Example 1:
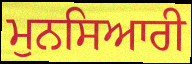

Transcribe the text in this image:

ਮੁਨਸਿਆਰੀ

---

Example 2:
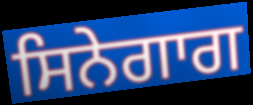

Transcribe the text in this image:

ਸਿਨੇਗਾਗ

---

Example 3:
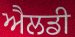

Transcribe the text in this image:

ਐਲਡੀ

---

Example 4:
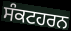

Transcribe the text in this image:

ਸੰਕਟਹਰਨ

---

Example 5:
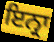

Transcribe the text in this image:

ਇਨ੍ਰਾ